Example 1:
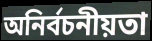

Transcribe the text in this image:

অনির্বচনীয়তা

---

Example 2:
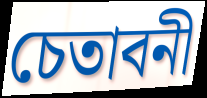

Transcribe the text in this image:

চেতাবনী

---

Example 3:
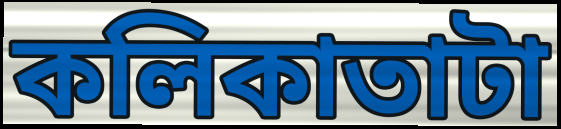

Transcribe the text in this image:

কলিকাতাটা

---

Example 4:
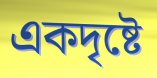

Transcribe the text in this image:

একদৃষ্টে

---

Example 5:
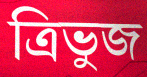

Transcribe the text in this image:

ত্রিভুজ